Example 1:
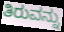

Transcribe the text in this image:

ತಿರುವನ್ನು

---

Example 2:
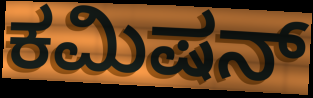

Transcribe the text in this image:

ಕಮಿಷನ್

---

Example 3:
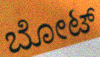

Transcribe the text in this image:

ಬೋಟ್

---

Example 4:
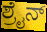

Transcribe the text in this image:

ಶ್ರೈನ್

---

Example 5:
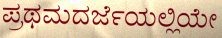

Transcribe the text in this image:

ಪ್ರಥಮದರ್ಜೆಯಲ್ಲಿಯೇ